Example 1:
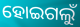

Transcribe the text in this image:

ହୋଇଗଲୁଁ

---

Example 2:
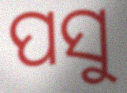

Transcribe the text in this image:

ପସୁ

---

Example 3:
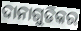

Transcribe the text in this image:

ଦାନାଗୁଡିକର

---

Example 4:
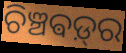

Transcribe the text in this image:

ଚିଞ୍ଚଵଡ଼୍‌ର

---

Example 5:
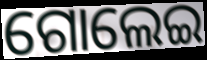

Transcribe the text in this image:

ଗୋଲେଇ